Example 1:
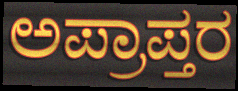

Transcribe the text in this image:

ಅಪ್ರಾಪ್ತರ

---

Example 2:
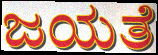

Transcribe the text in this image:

ಜಯತೆ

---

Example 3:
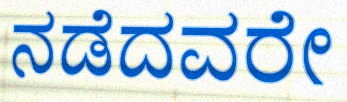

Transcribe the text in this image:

ನಡೆದವರೇ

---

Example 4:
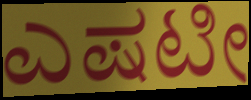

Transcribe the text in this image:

ಎಷಟೀ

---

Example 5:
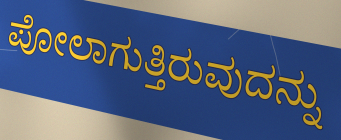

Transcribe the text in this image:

ಪೋಲಾಗುತ್ತಿರುವುದನ್ನು